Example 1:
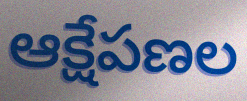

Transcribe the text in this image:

ఆక్షేపణల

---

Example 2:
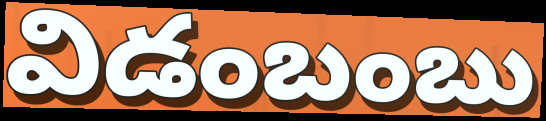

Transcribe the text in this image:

విడంబంబు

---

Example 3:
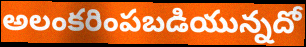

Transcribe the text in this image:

అలంకరింపబడియున్నదో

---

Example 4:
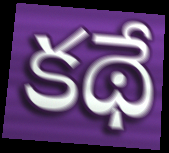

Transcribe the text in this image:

కథే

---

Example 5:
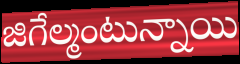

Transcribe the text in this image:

జిగేల్మంటున్నాయి